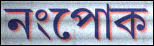
নংপোক